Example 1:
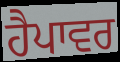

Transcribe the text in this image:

ਹੈਪਾਵਰ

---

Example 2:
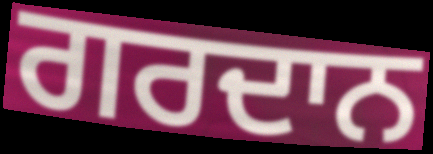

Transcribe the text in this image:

ਗਰਦਾਨ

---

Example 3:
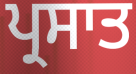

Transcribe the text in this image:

ਪ੍ਰਸਾਤ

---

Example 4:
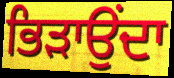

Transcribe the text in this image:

ਭਿੜਾਉਂਦਾ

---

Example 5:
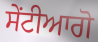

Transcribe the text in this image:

ਸੇਂਟੀਆਗੋ